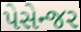
પેસેન્જર